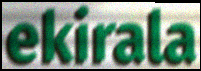
ekirala